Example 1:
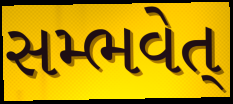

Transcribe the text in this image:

સમ્ભવેત્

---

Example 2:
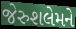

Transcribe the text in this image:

જેરુશલેમને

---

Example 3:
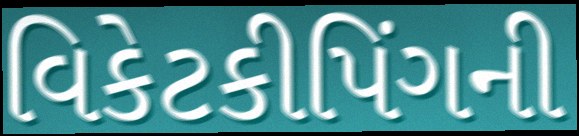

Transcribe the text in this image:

વિકેટકીપિંગની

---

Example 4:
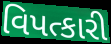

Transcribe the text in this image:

વિપત્કારી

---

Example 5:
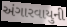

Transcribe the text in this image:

અંગારવાયુની